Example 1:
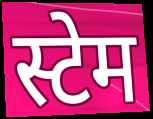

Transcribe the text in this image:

स्टेम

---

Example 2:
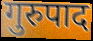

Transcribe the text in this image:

गुरुपाद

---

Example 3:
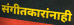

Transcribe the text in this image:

संगीतकारांनाही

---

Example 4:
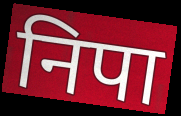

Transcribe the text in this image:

निपा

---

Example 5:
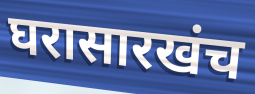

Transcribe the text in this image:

घरासारखंच